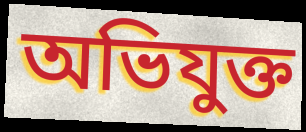
অভিযুক্ত